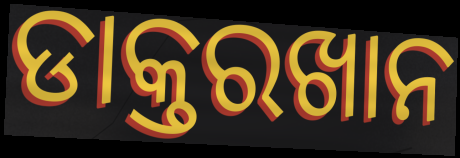
ଡାକ୍ତରଖାନ